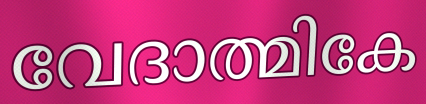
വേദാത്മികേ